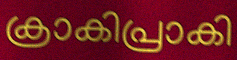
ക്രാകിപ്രാകി